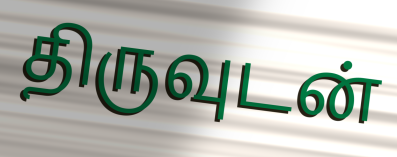
திருவுடன்